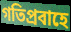
গতিপ্রবাহে